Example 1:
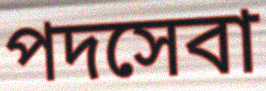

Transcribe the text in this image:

পদসেবা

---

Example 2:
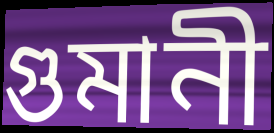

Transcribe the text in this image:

গুমানী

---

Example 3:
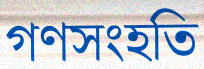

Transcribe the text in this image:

গণসংহতি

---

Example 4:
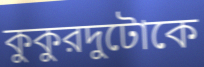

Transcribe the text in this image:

কুকুরদুটোকে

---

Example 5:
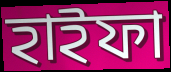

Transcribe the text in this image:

হাইফা